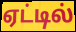
ஏட்டில்